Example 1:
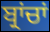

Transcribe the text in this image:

ਬ੍ਰਾਂਚਾਂ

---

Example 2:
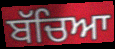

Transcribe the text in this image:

ਬੱਚਿਆ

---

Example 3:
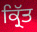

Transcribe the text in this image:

ਕ੍ਰਿੱਤ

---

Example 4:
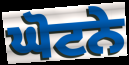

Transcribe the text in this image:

ਘੋਟਨੇ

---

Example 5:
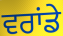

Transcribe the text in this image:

ਵਰਾਂਡੇ